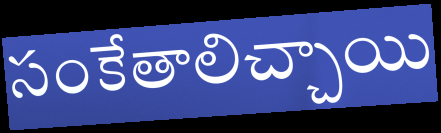
సంకేతాలిచ్చాయి